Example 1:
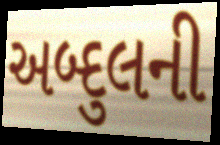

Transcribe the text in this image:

અબ્દુલની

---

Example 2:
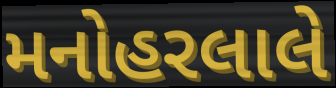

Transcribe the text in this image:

મનોહરલાલે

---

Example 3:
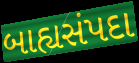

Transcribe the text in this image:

બાહ્યસંપદા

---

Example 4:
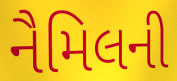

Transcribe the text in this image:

નૈમિલની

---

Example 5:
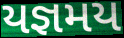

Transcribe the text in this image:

યજ્ઞમય